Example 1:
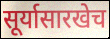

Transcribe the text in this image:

सूर्यासारखेच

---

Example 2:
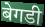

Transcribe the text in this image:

बेगडी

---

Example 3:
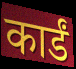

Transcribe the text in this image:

कार्डं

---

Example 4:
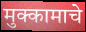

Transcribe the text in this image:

मुक्कामाचे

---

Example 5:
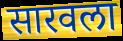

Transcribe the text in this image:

सारवला